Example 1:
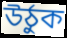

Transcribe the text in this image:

উঠুক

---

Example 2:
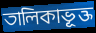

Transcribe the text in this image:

তালিকাভূক্ত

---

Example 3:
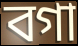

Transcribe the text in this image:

বগা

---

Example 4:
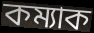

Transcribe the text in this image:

কম্যাক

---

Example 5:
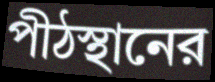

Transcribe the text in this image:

পীঠস্থানের